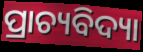
ପ୍ରାଚ୍ୟବିଦ୍ୟା